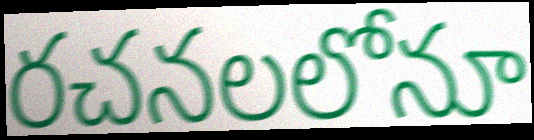
రచనలలోనూ